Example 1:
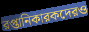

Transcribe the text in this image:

রপ্তানিকারকদেরও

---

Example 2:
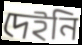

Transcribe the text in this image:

দেইনি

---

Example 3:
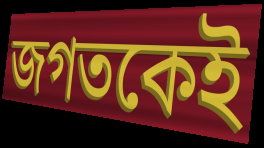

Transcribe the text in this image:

জগতকেই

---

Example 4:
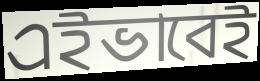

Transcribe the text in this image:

এইভাবেই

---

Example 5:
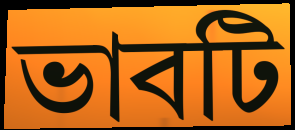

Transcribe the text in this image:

ভাবটি